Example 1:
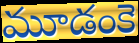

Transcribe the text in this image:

మూడంకె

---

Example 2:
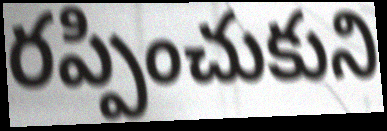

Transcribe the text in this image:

రప్పించుకుని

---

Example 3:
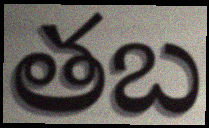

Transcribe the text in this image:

తబ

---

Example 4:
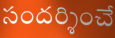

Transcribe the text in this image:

సందర్శించే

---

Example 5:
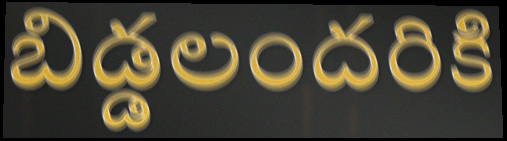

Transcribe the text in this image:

బిడ్డలందరికి